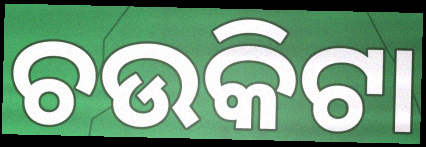
ଚଉକିଟା